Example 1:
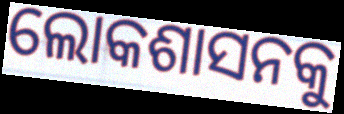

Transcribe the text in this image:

ଲୋକଶାସନକୁ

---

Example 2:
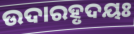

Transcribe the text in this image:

ଉଦାରହୃଦୟଃ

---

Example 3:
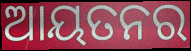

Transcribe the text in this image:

ଆୟତନର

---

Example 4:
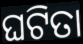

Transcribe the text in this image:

ଘଟିତା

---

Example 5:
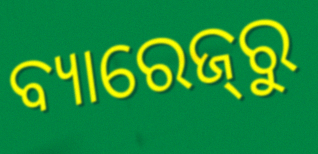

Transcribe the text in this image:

ବ୍ୟାରେଜ୍‌ରୁ